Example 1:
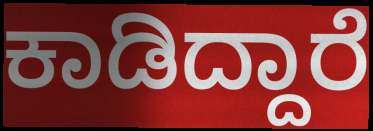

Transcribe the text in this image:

ಕಾಡಿದ್ದಾರೆ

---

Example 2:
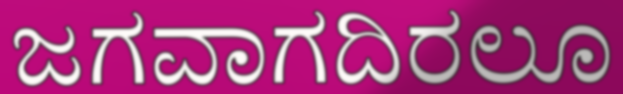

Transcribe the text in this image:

ಜಗವಾಗದಿರಲೂ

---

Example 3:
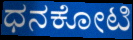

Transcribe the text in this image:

ಧನಕೋಟಿ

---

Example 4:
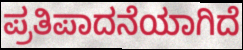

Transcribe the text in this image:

ಪ್ರತಿಪಾದನೆಯಾಗಿದೆ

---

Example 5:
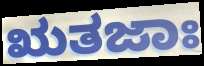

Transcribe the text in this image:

ಋತಜಾಃ